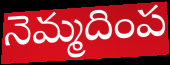
నెమ్మదింప